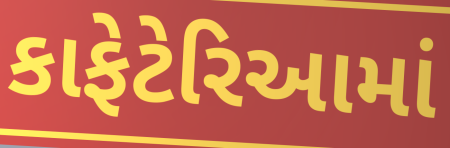
કાફેટેરિઆમાં